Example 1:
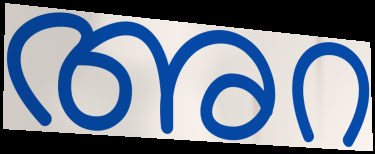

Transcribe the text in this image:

അറ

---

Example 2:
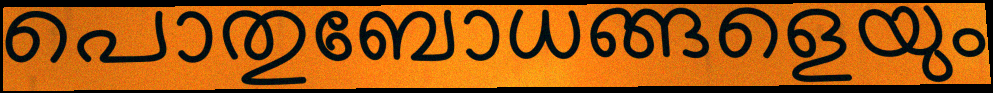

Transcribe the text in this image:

പൊതുബോധങ്ങളെയും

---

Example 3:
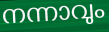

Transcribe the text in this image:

നന്നാവും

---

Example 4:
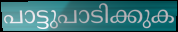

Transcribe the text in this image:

പാട്ടുപാടിക്കുക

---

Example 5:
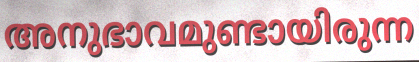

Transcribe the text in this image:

അനുഭാവമുണ്ടായിരുന്ന